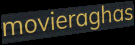
movieraghas